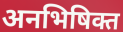
अनभिषिक्त